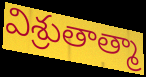
విశ్రుతాత్మా